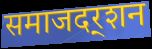
समाजदर्शन